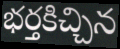
భర్తకిచ్చిన